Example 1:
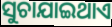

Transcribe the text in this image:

ସୁଚାଯାଇଥାଏ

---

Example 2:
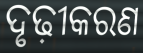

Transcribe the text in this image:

ଦୃଢ଼ୀକରଣ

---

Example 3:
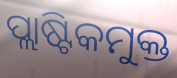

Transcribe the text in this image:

ପ୍ଲାଷ୍ଟିକମୁକ୍ତ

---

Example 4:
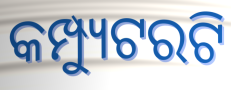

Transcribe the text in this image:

କମ୍ପ୍ୟୁଟରଟି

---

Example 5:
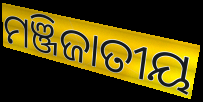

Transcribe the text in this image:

ମଞ୍ଜିଜାତୀୟ